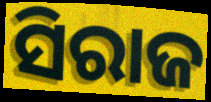
ସିରାଜ